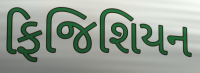
ફિજિશિયન